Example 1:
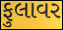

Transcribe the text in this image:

ફુલાવર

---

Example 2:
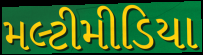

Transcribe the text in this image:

મલ્ટીમીડિયા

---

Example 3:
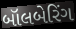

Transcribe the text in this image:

બૉલબેરિંગ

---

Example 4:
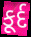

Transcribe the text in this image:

કૂર્દ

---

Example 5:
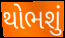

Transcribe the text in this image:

થોભશું